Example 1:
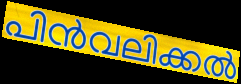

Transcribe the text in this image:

പിൻവലിക്കൽ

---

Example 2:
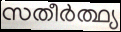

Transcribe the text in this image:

സതീർത്ഥ്യ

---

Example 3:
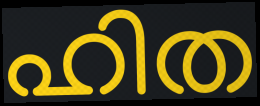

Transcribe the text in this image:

ഹിത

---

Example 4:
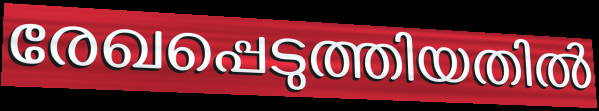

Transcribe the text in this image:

രേഖപ്പെടുത്തിയതിൽ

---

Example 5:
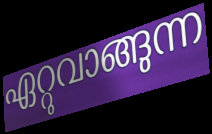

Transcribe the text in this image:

ഏറ്റുവാങ്ങുന്ന